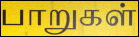
பாறுகள்